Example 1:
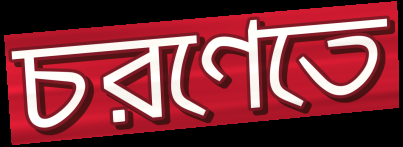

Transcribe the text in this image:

চরণেতে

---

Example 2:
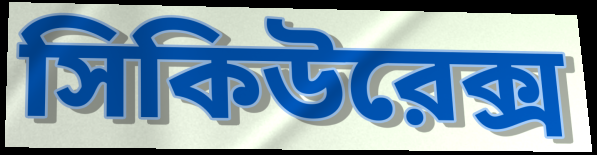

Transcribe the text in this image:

সিকিউরেক্স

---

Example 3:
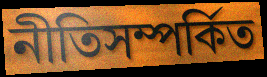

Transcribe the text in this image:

নীতিসম্পর্কিত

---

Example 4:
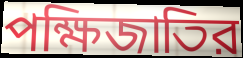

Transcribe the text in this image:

পক্ষিজাতির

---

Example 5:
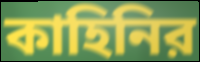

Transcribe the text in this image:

কাহিনির